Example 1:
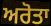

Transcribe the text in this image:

ਅਰੋਤਾ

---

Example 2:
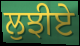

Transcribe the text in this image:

ਲੁਝੀਏ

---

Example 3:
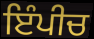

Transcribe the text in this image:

ਇੰਪੀਚ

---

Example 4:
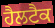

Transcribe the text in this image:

ਹੈਲਟੈਕ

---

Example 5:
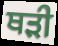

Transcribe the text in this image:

ਥੜੀ